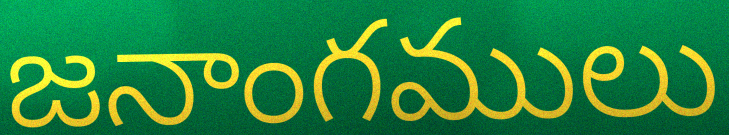
జనాంగములు